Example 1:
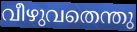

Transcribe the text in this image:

വീഴുവതെന്തു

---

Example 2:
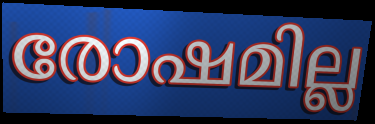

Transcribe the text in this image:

രോഷമില്ല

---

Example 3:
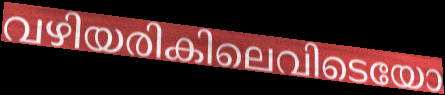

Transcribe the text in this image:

വഴിയരികിലെവിടെയോ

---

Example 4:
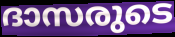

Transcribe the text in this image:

ദാസരുടെ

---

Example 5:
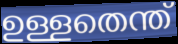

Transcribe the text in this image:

ഉള്ളതെന്ത്